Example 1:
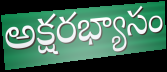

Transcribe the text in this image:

అక్షరభ్యాసం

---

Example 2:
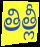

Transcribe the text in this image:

తిత్లీ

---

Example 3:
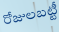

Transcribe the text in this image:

రోజులబట్టీ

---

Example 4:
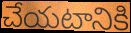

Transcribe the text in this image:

చేయటానికి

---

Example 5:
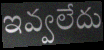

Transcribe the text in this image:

ఇవ్వలేదు